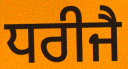
ਧਰੀਜੈ